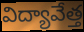
విద్యావేత్త